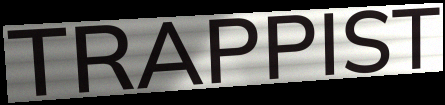
TRAPPIST